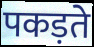
पकड़ते